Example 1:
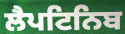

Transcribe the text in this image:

ਲੈਪਟਿਨਿਬ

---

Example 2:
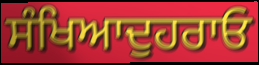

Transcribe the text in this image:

ਸੰਖਿਆਦੁਹਰਾਓ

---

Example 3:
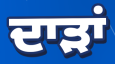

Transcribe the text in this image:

ਦਾੜਾਂ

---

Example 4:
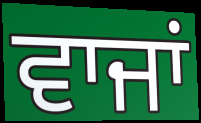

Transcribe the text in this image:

ਵਾਜਾਂ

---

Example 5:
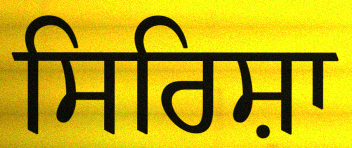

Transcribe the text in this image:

ਸਿਰਿਸ਼ਾ